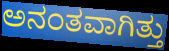
ಅನಂತವಾಗಿತ್ತು